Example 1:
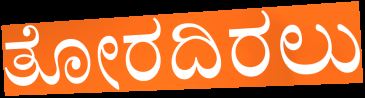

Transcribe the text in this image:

ತೋರದಿರಲು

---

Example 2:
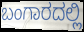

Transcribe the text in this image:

ಬಂಗಾರದಲ್ಲಿ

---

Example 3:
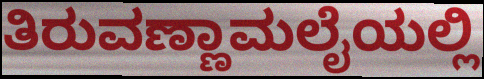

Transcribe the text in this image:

ತಿರುವಣ್ಣಾಮಲೈಯಲ್ಲಿ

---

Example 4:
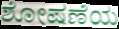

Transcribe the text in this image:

ಶೋಷಣೆಯ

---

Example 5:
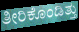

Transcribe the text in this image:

ತೀರಿಕೊಂಡಿತ್ತು